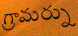
గ్రామర్ను